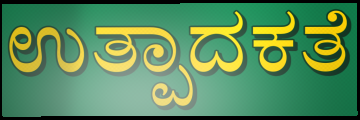
ಉತ್ಪಾದಕತೆ